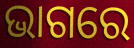
ଭାଗରେ